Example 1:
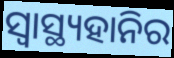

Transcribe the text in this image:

ସ୍ଵାସ୍ଥ୍ୟହାନିର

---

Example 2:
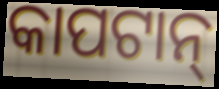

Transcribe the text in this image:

କାପଟାନ୍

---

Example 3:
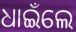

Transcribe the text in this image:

ଧାଇଁଲେ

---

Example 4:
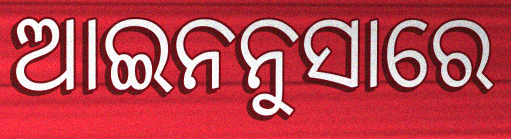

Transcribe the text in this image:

ଆଇନନୁସାରେ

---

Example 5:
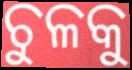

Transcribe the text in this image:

ଚୁଳକୁ